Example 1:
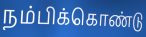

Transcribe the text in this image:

நம்பிக்கொண்டு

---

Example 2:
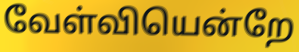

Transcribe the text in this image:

வேள்வியென்றே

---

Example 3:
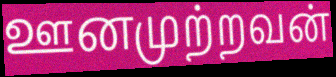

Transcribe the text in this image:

ஊனமுற்றவன்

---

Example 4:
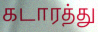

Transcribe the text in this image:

கடாரத்து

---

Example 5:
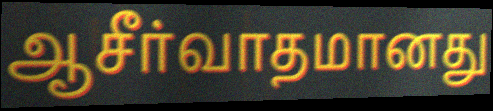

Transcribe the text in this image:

ஆசீர்வாதமானது